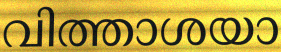
വിത്താശയാ